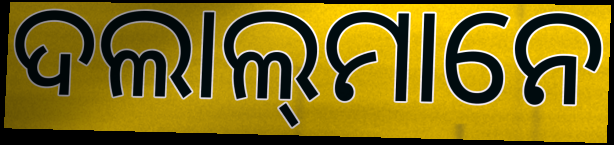
ଦଲାଲ୍‍ମାନେ